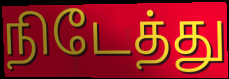
நிடேத்து